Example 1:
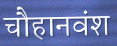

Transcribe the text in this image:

चौहानवंश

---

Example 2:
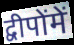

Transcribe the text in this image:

द्वीपोंमें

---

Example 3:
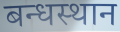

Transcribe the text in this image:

बन्धस्थान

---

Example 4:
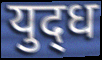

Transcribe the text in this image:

युद्‍ध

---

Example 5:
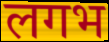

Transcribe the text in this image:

लगभ